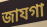
জাযগা